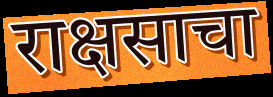
राक्षसाचा